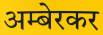
अम्बेरकर